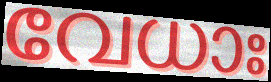
വേധാഃ